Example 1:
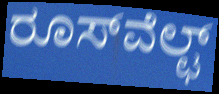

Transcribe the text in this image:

ರೂಸ್‌ವೆಲ್ಟ್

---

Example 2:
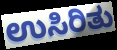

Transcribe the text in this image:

ಉಸಿರಿತು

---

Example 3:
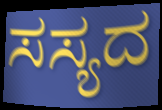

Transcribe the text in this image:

ಸಸ್ಯದ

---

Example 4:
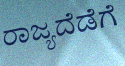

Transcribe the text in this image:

ರಾಜ್ಯದೆಡೆಗೆ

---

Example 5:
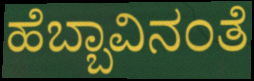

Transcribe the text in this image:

ಹೆಬ್ಬಾವಿನಂತೆ